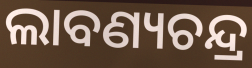
ଲାବଣ୍ୟଚନ୍ଦ୍ର